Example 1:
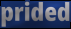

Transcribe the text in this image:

prided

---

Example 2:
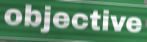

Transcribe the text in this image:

objective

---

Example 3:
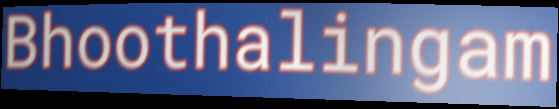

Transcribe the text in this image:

Bhoothalingam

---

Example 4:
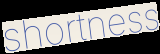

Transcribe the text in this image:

shortness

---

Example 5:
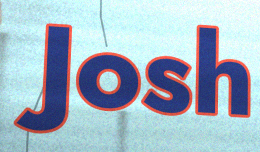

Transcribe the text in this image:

Josh